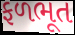
ફળભૂત